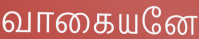
வாகையனே